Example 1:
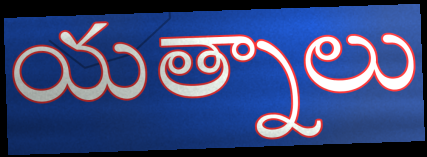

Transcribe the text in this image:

యత్నాలు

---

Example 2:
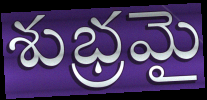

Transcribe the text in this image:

శుభ్రమై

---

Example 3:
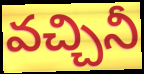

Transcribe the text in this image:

వచ్చినీ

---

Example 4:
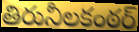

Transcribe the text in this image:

తిరునీలకంఠర్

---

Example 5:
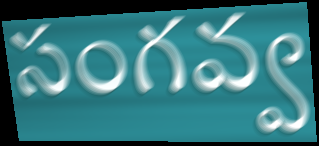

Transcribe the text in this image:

సంగవ్వ